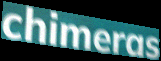
chimeras